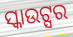
ସ୍କାଉଟ୍ସର